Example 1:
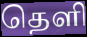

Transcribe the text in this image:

தெளி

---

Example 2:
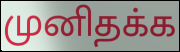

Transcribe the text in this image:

முனிதக்க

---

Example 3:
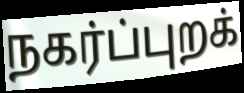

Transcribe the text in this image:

நகர்ப்புறக்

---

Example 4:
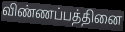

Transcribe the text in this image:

விண்ணப்பத்தினை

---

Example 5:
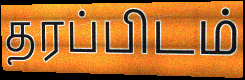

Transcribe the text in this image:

தரப்பிடம்